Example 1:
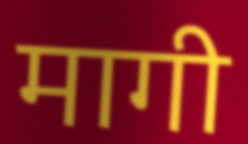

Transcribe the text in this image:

मागी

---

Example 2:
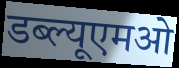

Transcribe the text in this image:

डब्ल्यूएमओ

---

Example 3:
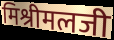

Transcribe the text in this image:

मिश्रीमलजी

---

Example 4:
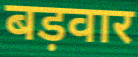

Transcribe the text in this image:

बड़वार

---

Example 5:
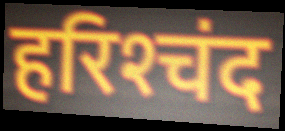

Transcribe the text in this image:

हरिश्चंद